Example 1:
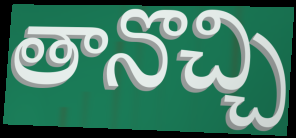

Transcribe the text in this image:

తానొచ్చి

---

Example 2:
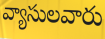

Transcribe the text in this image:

వ్యాసులవారు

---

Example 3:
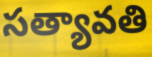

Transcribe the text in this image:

సత్యావతి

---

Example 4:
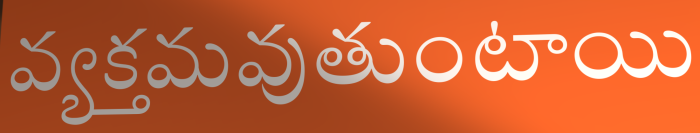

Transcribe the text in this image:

వ్యక్తమవుతుంటాయి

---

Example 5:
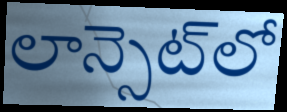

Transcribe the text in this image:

లాన్సెట్‌లో